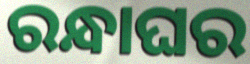
ରନ୍ଧାଘର